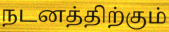
நடனத்திற்கும்